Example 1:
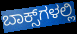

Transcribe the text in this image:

ಬಾಕ್ಸ್‌ಗಳಲ್ಲಿ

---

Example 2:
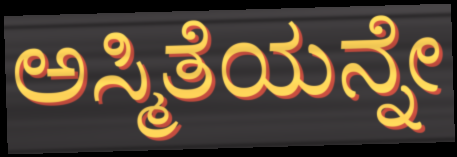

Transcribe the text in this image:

ಅಸ್ಮಿತೆಯನ್ನೇ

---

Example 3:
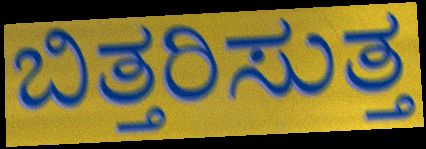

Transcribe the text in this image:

ಬಿತ್ತರಿಸುತ್ತ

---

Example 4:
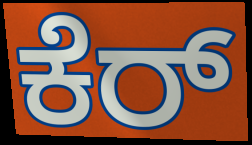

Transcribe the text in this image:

ಕೆರ್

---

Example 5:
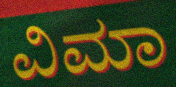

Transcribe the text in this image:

ವಿಮಾ